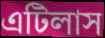
এটিলাস